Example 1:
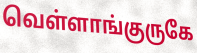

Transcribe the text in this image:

வெள்ளாங்குருகே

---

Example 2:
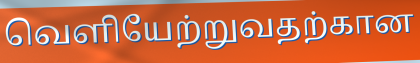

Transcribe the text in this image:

வெளியேற்றுவதற்கான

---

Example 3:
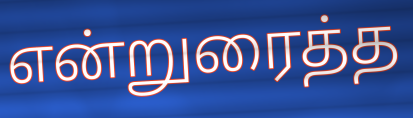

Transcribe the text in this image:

என்றுரைத்த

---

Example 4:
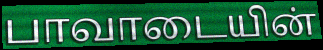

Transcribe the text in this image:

பாவாடையின்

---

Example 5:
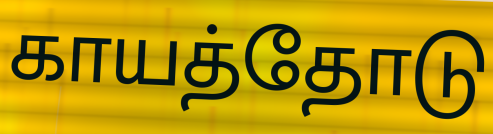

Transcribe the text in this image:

காயத்தோடு